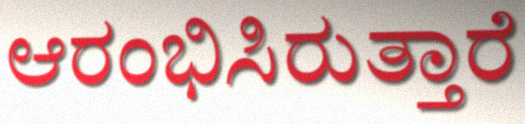
ಆರಂಭಿಸಿರುತ್ತಾರೆ